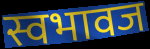
स्वभावज